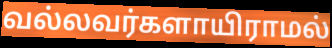
வல்லவர்களாயிராமல்